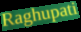
Raghupati